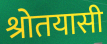
श्रोतयासी